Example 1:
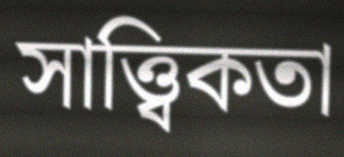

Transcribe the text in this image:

সাত্ত্বিকতা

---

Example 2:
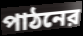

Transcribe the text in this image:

পাঠনের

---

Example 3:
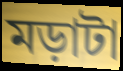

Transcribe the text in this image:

মড়াটা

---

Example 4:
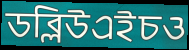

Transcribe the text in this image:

ডব্লিউএইচও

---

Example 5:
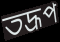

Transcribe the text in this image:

তদ্রূপ